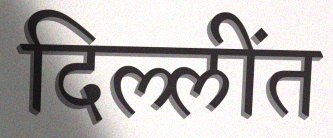
दिल्लींत